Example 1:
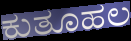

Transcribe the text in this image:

ಕುತೂಹಲ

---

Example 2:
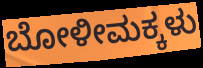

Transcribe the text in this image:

ಬೋಳೀಮಕ್ಕಳು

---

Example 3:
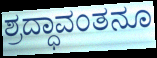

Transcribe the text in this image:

ಶ್ರದ್ಧಾವಂತನೂ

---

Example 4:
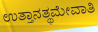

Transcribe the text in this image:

ಉತ್ತಾನತ್ಥಮೇವಾತಿ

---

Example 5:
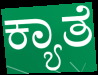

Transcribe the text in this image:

ಕ್ಯಾತೆ